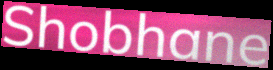
Shobhane